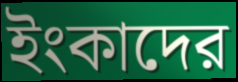
ইংকাদের